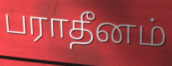
பராதீனம்